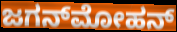
ಜಗನ್‌ಮೋಹನ್